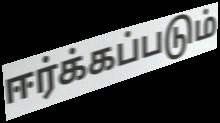
ஈர்க்கப்படும்